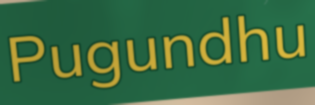
Pugundhu